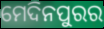
ମେଦିନପୁରର